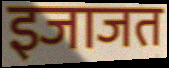
इजाजत